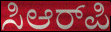
ಸಿಆರ್‌ಪಿ